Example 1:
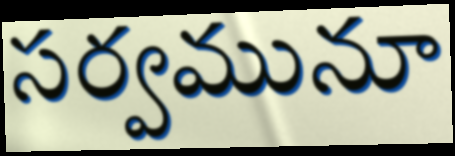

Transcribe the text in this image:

సర్వమునూ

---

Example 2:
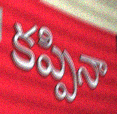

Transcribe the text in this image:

కప్పినా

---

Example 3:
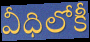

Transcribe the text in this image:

వీధిలోకీ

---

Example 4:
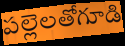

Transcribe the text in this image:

పల్లెలతోగూడి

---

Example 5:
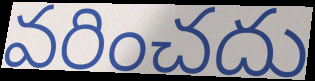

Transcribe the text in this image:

వరించదు